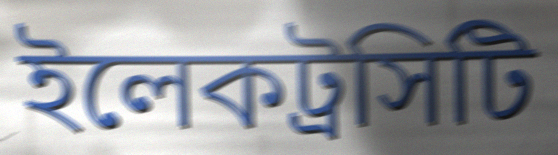
ইলেকট্রসিটি